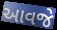
આવજે